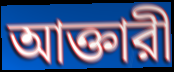
আক্তারী